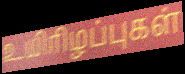
உயிரிழப்புகள்